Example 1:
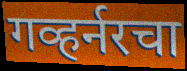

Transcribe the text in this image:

गव्हर्नरचा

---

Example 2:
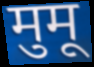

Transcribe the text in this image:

मुमू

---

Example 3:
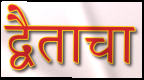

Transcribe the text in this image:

द्वैताचा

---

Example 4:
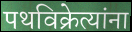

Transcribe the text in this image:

पथविक्रेत्यांना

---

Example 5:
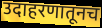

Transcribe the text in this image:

उदाहरणातूनच